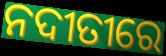
ନଦୀତୀରେ